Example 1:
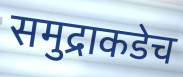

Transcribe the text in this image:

समुद्राकडेच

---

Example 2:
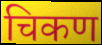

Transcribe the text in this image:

चिकण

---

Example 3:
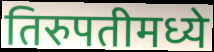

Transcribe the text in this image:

तिरुपतीमध्ये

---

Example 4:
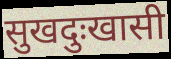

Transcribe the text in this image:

सुखदुःखासी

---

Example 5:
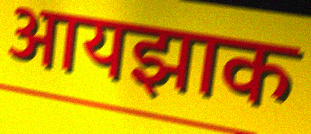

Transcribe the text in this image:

आयझाक